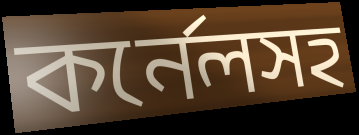
কর্নেলসহ